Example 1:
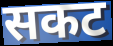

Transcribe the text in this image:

सकट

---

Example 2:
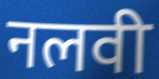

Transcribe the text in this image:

नलवी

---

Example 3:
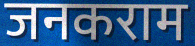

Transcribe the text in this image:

जनकराम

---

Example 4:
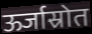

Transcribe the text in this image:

ऊर्जास्रोत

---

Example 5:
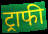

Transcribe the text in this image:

ट्राफी